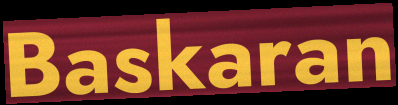
Baskaran